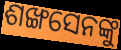
ଶଙ୍ଖସେନଙ୍କୁ